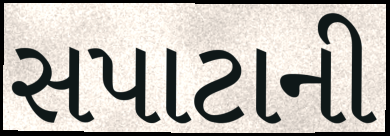
સપાટાની